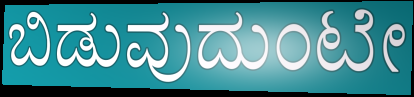
ಬಿಡುವುದುಂಟೇ